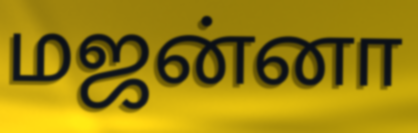
மஜன்னா